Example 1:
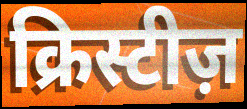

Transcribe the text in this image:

क्रिस्टीज़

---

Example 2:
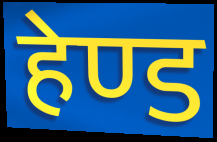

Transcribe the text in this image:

हेण्ड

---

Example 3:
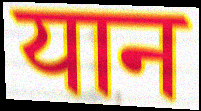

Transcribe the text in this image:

यान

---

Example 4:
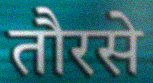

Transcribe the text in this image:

तौरसे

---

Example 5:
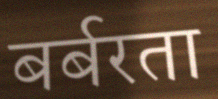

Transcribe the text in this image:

बर्बरता